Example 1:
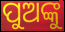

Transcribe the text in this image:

ପୁଅଙ୍କୁ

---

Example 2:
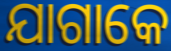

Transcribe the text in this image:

ଯାଗାକେ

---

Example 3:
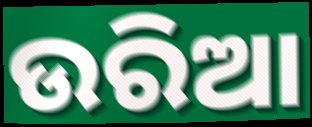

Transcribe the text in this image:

ଉରିଆ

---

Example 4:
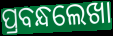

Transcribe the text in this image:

ପ୍ରବନ୍ଧଲେଖା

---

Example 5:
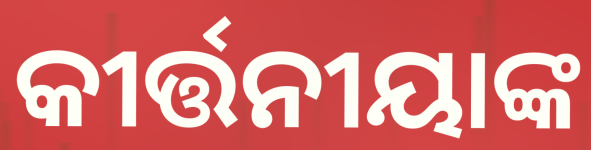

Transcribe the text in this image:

କୀର୍ତ୍ତନୀୟାଙ୍କ